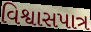
વિશ્વાસપાત્ર